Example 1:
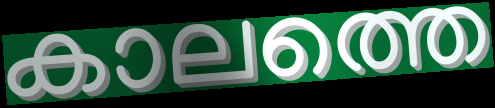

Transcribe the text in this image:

കാലത്തെ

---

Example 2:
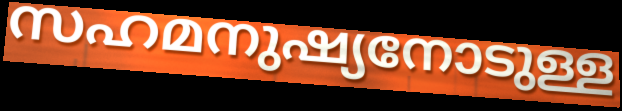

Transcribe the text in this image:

സഹമനുഷ്യനോടുള്ള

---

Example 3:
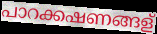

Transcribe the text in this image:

പാറക്കഷണങ്ങള്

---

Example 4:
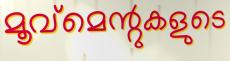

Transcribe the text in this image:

മൂവ്മെന്റുകളുടെ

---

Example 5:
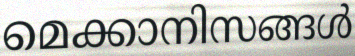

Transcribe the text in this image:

മെക്കാനിസങ്ങൾ